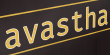
avastha